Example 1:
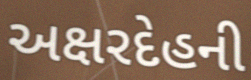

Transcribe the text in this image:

અક્ષરદેહની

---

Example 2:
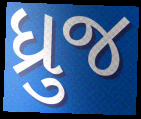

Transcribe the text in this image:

ધ્રુજ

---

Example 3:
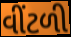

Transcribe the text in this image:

વીંટળી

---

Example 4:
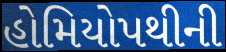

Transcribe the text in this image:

હોમિયોપથીની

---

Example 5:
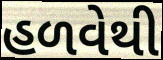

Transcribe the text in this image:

હળવેથી